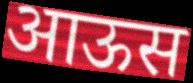
आऊस